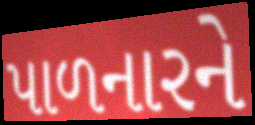
પાળનારને